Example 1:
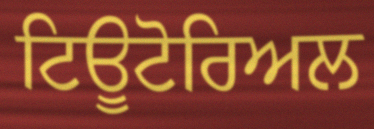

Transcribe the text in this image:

ਟਿਊਟੋਰਿਅਲ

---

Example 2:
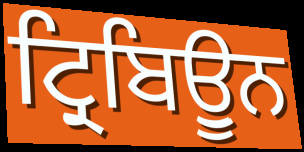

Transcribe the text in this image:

ਟ੍ਰਿਬਿਉੂਨ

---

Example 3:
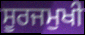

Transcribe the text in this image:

ਸੂਰਜਮੁਖੀ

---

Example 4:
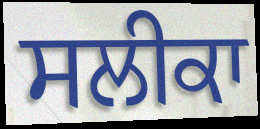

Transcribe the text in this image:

ਸਲੀਕਾ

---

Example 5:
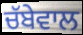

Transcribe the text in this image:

ਚੱਬੇਵਾਲ